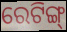
ରେଟିଙ୍ଗ୍